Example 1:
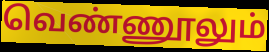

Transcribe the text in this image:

வெண்ணூலும்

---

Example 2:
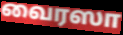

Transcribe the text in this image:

வைரஸா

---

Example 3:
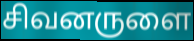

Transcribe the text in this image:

சிவனருளை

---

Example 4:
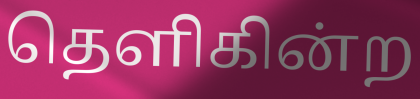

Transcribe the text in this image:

தெளிகின்ற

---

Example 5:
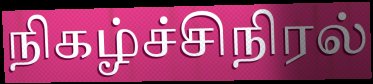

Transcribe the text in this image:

நிகழ்ச்சிநிரல்